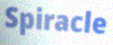
Spiracle